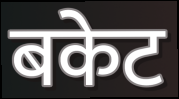
बकेट